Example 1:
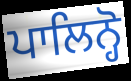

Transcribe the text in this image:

ਪਾਲਿਨ੍ਹੋ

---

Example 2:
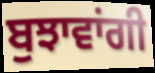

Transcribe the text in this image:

ਬੁਝਾਵਾਂਗੀ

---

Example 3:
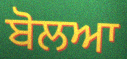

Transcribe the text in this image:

ਬੋਲਆ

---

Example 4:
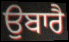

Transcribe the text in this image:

ਉਬਾਰੈ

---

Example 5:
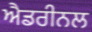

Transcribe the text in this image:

ਐਡਰੀਨਲ